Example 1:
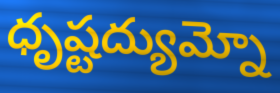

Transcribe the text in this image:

ధృష్టద్యుమ్నో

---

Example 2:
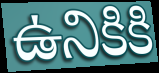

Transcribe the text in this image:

ఉనికికి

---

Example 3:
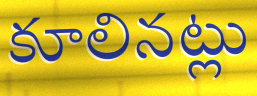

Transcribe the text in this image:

కూలినట్లు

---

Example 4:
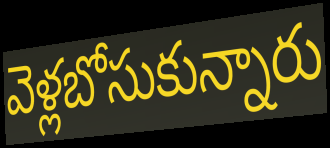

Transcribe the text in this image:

వెళ్లబోసుకున్నారు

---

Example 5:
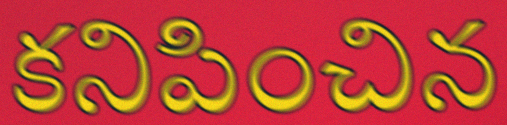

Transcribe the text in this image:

కనిపించిన